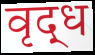
वृद्ध